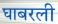
घाबरली